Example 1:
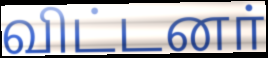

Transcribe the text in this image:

விட்டனர்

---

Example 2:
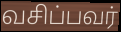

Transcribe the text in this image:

வசிப்பவர்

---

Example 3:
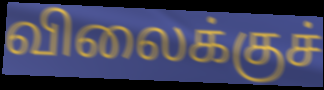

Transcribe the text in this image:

விலைக்குச்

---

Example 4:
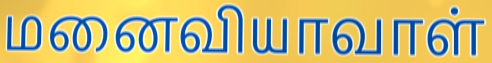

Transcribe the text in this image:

மனைவியாவாள்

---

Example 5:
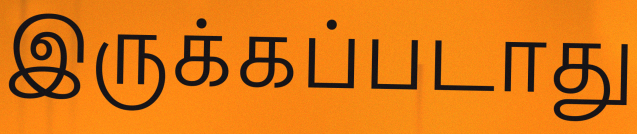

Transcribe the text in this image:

இருக்கப்படாது